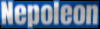
Nepoleon